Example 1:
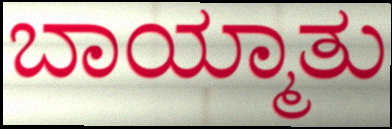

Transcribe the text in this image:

ಬಾಯ್ಮಾತು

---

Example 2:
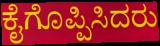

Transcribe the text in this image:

ಕೈಗೊಪ್ಪಿಸಿದರು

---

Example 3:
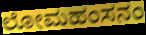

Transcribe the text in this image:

ಲೋಮಹಂಸನಂ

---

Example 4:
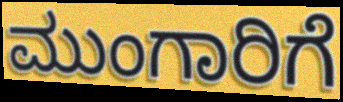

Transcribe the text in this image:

ಮುಂಗಾರಿಗೆ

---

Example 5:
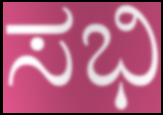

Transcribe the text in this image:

ಸಭಿ